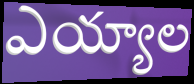
ఎయ్యాల